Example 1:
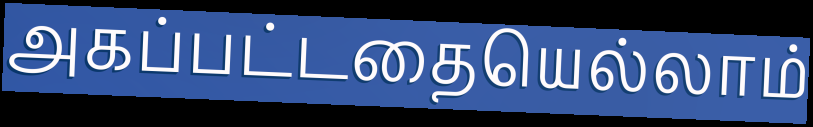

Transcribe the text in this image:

அகப்பட்டதையெல்லாம்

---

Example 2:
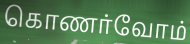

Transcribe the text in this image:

கொணர்வோம்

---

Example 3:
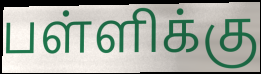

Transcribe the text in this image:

பள்ளிக்கு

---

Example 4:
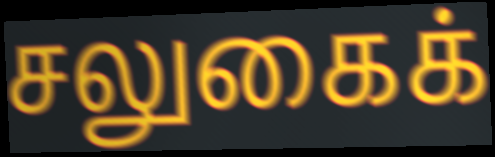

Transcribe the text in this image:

சலுகைக்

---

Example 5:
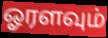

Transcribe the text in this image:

ஓரளவும்